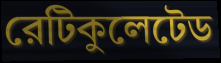
রেটিকুলেটেড